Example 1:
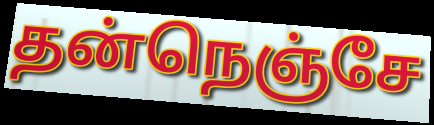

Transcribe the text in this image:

தன்நெஞ்சே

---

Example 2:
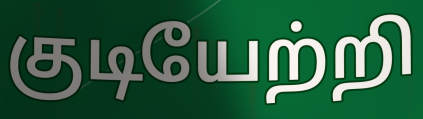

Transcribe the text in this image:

குடியேற்றி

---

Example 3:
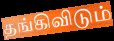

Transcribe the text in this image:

தங்கிவிடும்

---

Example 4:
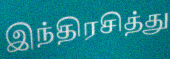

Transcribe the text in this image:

இந்திரசித்து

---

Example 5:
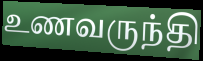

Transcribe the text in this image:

உணவருந்தி